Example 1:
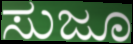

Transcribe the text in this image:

ಸುಜೂ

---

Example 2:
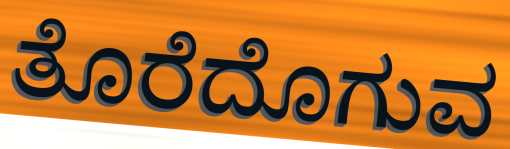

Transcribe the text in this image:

ತೊರೆದೊಗುವ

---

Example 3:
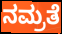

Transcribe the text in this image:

ನಮ್ರತೆ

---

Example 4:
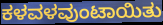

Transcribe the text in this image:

ಕಳವಳವುಂಟಾಯಿತು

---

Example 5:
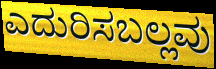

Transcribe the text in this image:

ಎದುರಿಸಬಲ್ಲವು